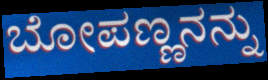
ಬೋಪಣ್ಣನನ್ನು